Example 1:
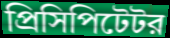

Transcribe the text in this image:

প্রিসিপিটেটর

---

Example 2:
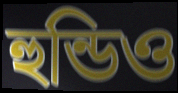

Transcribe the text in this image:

হুন্ডিও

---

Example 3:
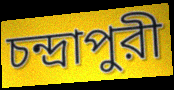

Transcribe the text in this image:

চন্দ্রাপুরী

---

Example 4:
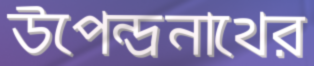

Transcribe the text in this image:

উপেন্দ্রনাথের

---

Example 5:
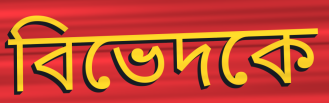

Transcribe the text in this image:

বিভেদকে